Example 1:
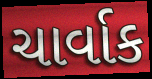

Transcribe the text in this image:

ચાર્વાક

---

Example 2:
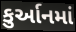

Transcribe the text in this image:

કુર્આનમાં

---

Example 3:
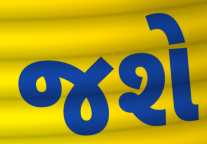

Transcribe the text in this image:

જશે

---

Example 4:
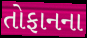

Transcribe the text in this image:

તોફાનના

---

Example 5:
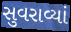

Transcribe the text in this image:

સુવરાવ્યાં